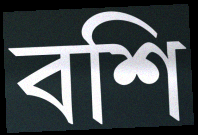
বশি